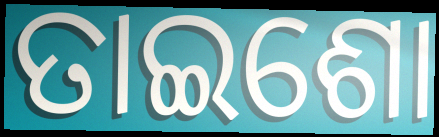
ତାଇଶୋ